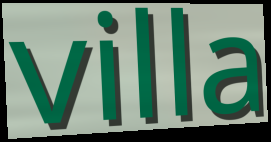
villa